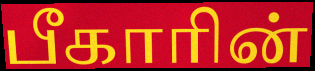
பீகாரின்